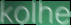
kolhe